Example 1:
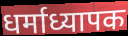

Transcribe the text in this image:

धर्माध्यापक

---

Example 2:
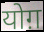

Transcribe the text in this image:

योग़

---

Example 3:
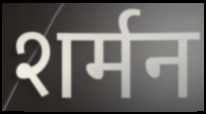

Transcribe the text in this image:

शर्मन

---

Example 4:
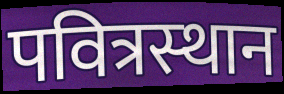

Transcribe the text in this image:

पवित्रस्‍थान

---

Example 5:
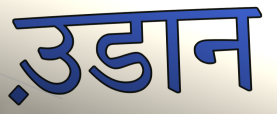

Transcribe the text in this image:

उ़डान